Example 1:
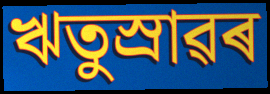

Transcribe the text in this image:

ঋতুস্ৰাৱৰ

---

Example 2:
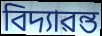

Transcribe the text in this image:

বিদ্যাৱন্ত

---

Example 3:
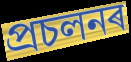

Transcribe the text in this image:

প্ৰচলনৰ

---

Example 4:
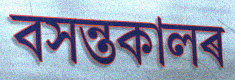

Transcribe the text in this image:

বসন্তকালৰ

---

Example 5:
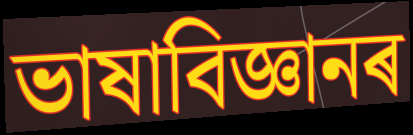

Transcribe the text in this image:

ভাষাবিজ্ঞানৰ